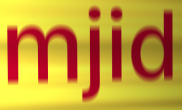
mjid